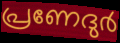
പ്രണേദുർ